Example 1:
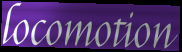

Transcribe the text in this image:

locomotion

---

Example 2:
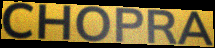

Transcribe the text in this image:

CHOPRA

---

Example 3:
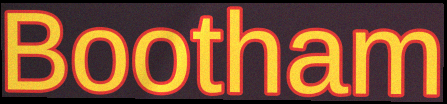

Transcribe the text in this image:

Bootham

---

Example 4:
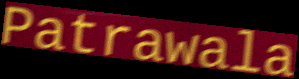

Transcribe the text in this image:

Patrawala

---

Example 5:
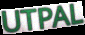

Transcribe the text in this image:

UTPAL